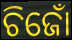
ଚିଜୋଁ